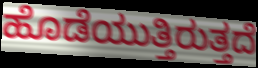
ಹೊಡೆಯುತ್ತಿರುತ್ತದೆ